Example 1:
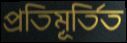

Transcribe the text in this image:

প্ৰতিমূৰ্তিত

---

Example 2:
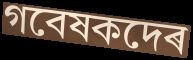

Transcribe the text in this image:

গবেষকদেৰ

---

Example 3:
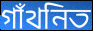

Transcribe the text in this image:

গাঁথনিত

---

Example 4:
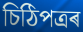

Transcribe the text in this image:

চিঠিপত্ৰৰ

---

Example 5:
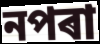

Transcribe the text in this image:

নপৰা